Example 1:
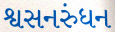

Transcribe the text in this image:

શ્વસનરુંધન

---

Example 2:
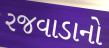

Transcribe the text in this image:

રજવાડાનો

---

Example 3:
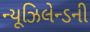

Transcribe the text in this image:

ન્યૂઝિલેન્ડની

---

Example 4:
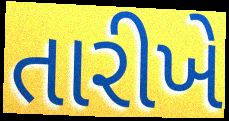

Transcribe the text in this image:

તારીખે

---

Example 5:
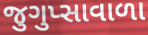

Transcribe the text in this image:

જુગુપ્સાવાળા